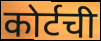
कोर्टची